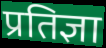
प्रतिज्ञा